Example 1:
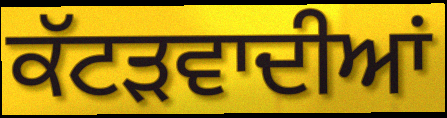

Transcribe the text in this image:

ਕੱਟੜਵਾਦੀਆਂ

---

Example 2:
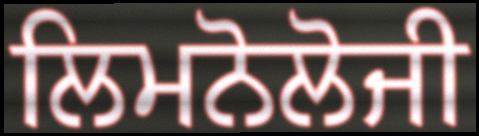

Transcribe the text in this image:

ਲਿਮਨੋਲੋਜੀ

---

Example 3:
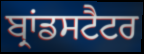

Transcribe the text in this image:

ਬ੍ਰਾਂਡਸਟੈਟਰ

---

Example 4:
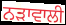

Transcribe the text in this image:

ਨੜਾਵਾਲੀ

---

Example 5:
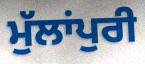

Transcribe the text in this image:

ਮੁੱਲਾਂਪੁਰੀ